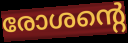
രോശന്റെ